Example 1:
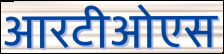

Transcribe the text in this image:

आरटीओएस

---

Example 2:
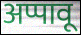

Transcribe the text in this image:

अप्पावू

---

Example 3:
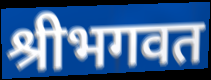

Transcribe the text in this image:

श्रीभगवत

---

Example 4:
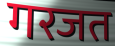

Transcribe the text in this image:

गरजत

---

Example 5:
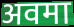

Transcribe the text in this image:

अवमा